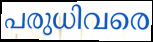
പരുധിവരെ